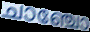
ചാഞ്ചോ